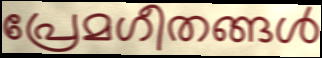
പ്രേമഗീതങ്ങൾ